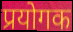
प्रयोगक